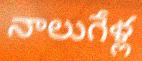
నాలుగేళ్ల